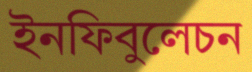
ইনফিবুলেচন